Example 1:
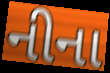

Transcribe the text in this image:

નીના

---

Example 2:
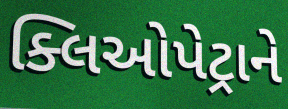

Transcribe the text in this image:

ક્લિઓપેટ્રાને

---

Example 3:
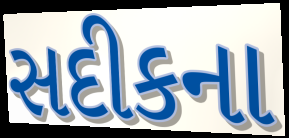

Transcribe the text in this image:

સદીકના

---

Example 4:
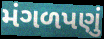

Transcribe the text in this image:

મંગળપણું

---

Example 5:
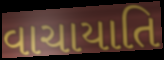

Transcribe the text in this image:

વાચાયાતિ